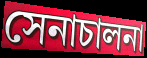
সেনাচালনা